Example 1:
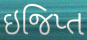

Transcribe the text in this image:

ઇજિપ્ત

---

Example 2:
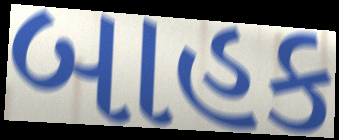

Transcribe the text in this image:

બાહક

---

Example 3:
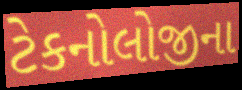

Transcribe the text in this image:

ટેકનોલોજીના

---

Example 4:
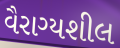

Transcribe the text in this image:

વૈરાગ્યશીલ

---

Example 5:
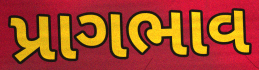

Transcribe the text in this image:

પ્રાગભાવ